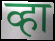
व्हा